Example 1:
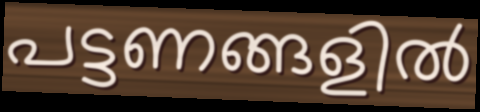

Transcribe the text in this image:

പട്ടണങ്ങളിൽ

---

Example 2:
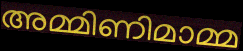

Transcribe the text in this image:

അമ്മിണിമാമ്മ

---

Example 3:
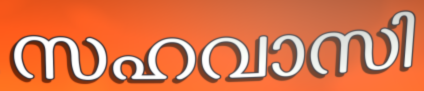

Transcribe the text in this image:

സഹവാസി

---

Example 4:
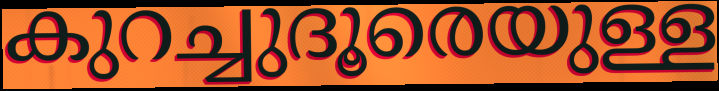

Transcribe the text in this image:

കുറച്ചുദൂരെയുള്ള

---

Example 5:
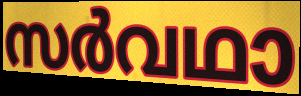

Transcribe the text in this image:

സർവഥാ